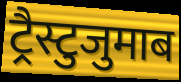
ट्रैस्टुजुमाब